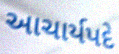
આચાર્યપદે